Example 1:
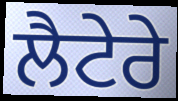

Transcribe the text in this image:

ਲੈਟੇਰੇ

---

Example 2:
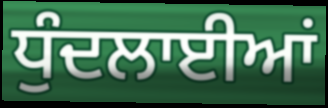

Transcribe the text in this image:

ਧੁੰਦਲਾਈਆਂ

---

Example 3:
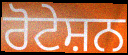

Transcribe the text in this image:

ਰੋਟੇਸ਼ਨ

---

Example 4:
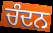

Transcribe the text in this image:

ਚੰਦਨ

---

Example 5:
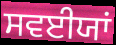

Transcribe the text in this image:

ਸਵਈਯਾਂ